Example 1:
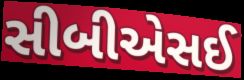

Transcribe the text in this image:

સીબીએસઈ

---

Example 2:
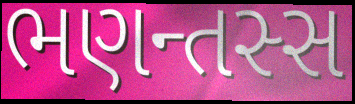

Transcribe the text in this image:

ભણન્તસ્સ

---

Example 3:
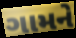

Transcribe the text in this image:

ગામને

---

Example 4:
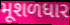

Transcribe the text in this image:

મૂશળધાર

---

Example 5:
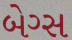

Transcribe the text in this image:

બેગ્સ